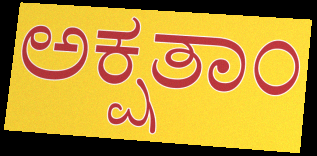
ಅಕ್ಷತಾಂ